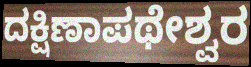
ದಕ್ಷಿಣಾಪಥೇಶ್ವರ